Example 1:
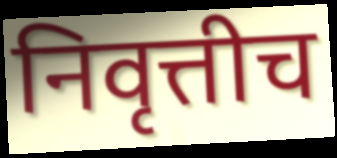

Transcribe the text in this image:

निवृत्तीच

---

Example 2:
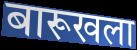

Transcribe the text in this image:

बारूखला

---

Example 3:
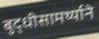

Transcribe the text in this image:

बुद्धीसामर्थ्याने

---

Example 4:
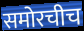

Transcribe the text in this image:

समोरचीच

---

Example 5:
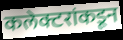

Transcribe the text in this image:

कलेक्टरांकडून